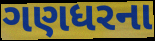
ગણધરના